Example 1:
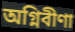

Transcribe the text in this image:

অগ্নিবীণা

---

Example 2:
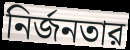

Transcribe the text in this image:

নির্জনতার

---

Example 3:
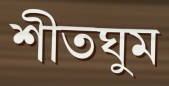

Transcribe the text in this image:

শীতঘুম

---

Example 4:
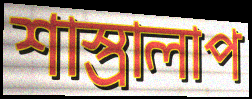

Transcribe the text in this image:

শাস্ত্রালাপ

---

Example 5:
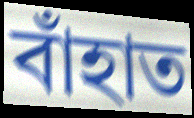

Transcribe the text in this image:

বাঁহাত